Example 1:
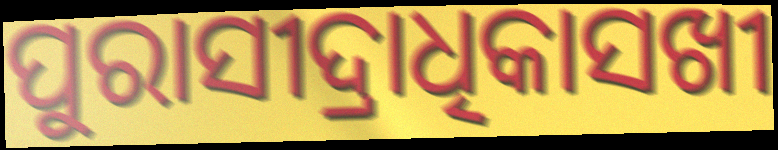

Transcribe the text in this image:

ପୁରାସୀଦ୍ରାଧିକାସଖୀ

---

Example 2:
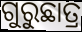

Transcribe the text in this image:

ଗୁରୁଛାତ୍ର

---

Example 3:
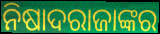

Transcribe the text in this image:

ନିଷାଦରାଜାଙ୍କର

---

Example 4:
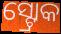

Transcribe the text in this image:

ସ୍ଟ୍ରୋକ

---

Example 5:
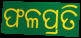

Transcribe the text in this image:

ଫଳପ୍ରତି